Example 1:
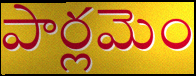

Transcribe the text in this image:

పార్లమెం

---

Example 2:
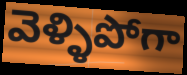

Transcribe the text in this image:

వెళ్ళిపోగా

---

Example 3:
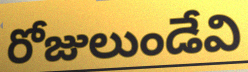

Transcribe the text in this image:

రోజులుండేవి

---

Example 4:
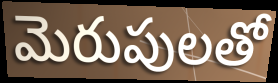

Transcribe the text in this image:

మెరుపులతో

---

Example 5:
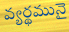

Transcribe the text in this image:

వ్యర్థమునై